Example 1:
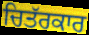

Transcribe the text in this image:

ਚਿਤੱਰਕਾਰ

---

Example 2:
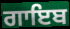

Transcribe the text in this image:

ਗਾਇਬ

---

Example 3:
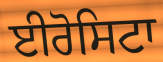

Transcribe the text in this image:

ਈਰੋਸਿਟਾ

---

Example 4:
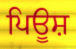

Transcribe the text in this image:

ਪਿਊਸ਼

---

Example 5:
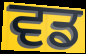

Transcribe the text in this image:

ਵਡ